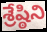
శ్రేష్ఠిని